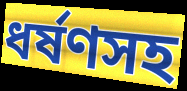
ধর্ষণসহ